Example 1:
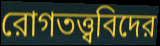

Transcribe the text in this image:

রোগতত্ত্ববিদের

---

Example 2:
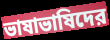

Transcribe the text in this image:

ভাষাভাষিদের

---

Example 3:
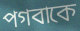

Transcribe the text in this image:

পগবাকে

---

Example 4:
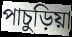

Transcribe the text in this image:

পাচুড়িয়া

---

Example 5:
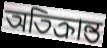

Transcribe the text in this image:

অতিক্রান্ত